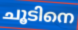
ചൂടിനെ